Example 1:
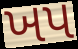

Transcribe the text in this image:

ખપ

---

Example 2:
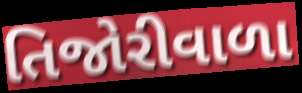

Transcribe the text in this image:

તિજોરીવાળા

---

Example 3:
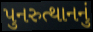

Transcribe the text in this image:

પુનરુત્થાનનું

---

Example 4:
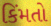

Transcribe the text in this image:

કિંમતો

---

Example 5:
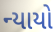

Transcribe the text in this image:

ન્યાયો